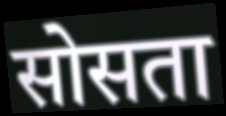
सोसता